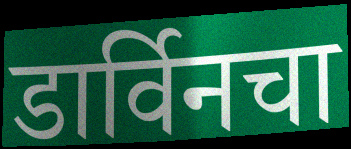
डार्विनचा